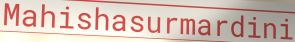
Mahishasurmardini